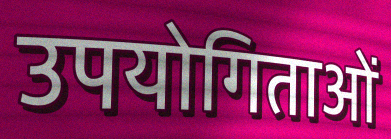
उपयोगिताओं